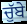
ਚੁੱਬੇ